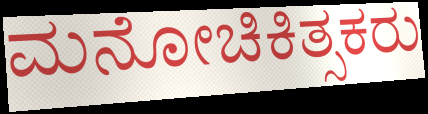
ಮನೋಚಿಕಿತ್ಸಕರು